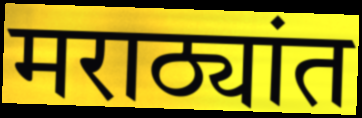
मराठ्यांत